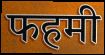
फहमी